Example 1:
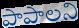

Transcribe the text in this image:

పాపాలని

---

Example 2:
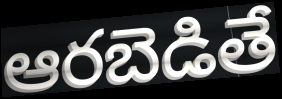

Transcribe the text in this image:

ఆరబెడితే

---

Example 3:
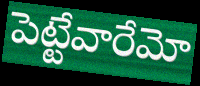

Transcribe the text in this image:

పెట్టేవారేమో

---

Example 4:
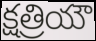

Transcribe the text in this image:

క్షత్రియౌ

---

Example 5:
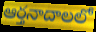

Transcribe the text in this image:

ఆర్తనాదాలలో